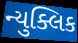
ન્યુક્લિક